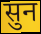
सुन